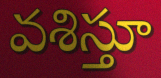
వశిస్తూ